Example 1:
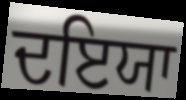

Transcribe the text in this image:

ਦਇਯਾ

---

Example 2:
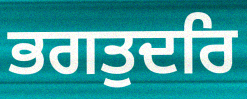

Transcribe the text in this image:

ਭਗਤੁਦਰਿ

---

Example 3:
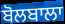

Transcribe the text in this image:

ਬੋਲਬਾਲਾ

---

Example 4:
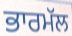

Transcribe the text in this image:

ਭਾਰਮੱਲ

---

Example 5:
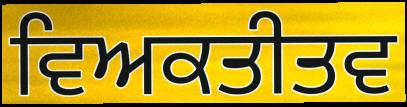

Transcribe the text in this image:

ਵਿਅਕਤੀਤਵ